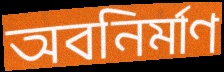
অবনির্মাণ